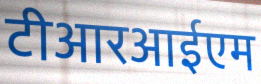
टीआरआईएम